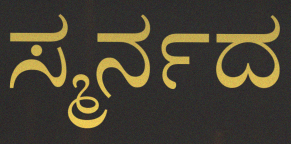
ಸ್ಮರ್ನದ